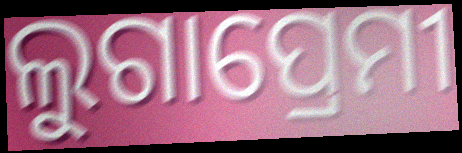
ଲୁଗାପ୍ରେମୀ